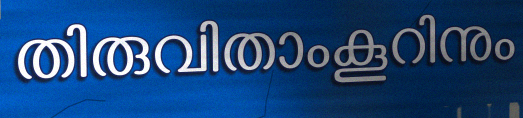
തിരുവിതാംകൂറിനും